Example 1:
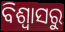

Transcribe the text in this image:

ବିଶ୍ବାସରୁ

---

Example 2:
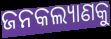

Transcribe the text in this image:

ଜନକଲ୍ୟାଣକୁ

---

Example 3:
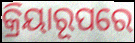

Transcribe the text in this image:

କ୍ରିୟାରୂପରେ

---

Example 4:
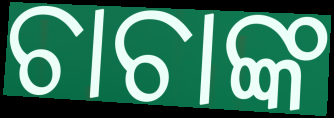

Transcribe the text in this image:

ଚାଚାଙ୍କ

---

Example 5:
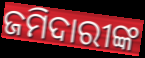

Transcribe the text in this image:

ଜମିଦାରୀଙ୍କ